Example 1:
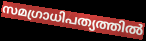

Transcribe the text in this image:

സമഗ്രാധിപത്യത്തിൽ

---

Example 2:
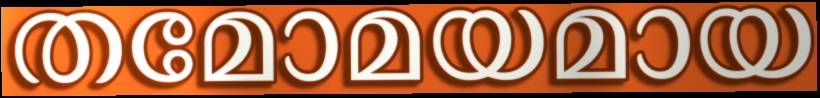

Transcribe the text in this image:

തമോമയമായ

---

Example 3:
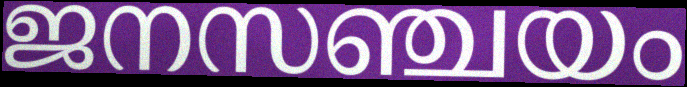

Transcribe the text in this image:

ജനസഞ്ചയം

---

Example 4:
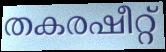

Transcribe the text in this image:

തകരഷീറ്റ്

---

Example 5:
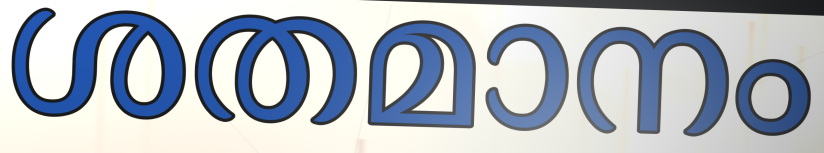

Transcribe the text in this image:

ശതമാനം